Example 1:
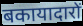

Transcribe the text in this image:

बकायादारों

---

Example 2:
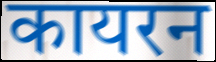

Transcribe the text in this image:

कायरन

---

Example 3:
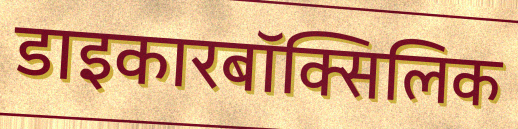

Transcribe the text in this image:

डाइकारबॉक्सिलिक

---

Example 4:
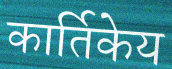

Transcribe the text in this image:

कार्तिकेय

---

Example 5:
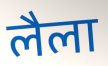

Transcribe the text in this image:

लैला